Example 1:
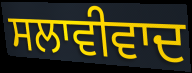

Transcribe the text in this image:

ਸਲਾਵੀਵਾਦ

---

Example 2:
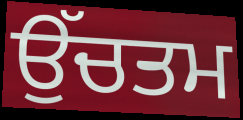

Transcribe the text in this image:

ਉੱਚਤਮ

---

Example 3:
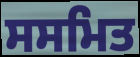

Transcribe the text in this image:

ਸਸਮਿਤ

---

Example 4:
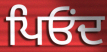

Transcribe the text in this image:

ਪਿਓਂਦ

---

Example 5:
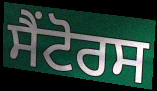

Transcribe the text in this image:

ਸੈਂਟੋਰਸ